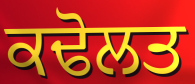
ਕਢੋਲਤ